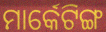
ମାର୍କେଟିଙ୍ଗ